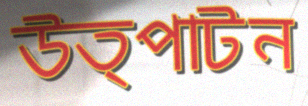
উত্পাটন